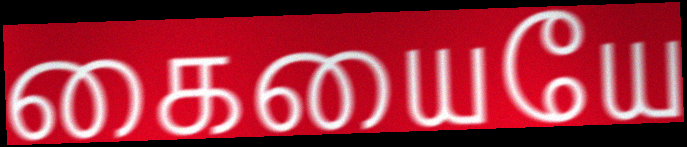
கையையே